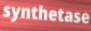
synthetase